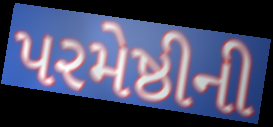
પરમેષ્ઠીની